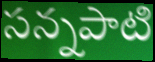
సన్నపాటి